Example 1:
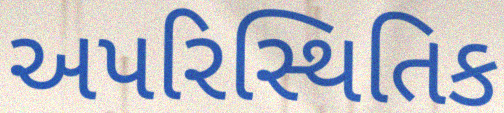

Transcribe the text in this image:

અપરિસ્થિતિક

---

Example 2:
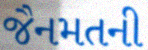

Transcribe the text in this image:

જૈનમતની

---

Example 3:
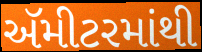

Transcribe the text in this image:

ઍમીટરમાંથી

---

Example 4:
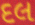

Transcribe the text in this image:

દલ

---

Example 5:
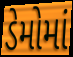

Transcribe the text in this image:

ડેમોમાં